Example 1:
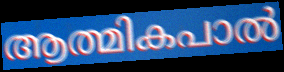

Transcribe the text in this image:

ആത്മികപാൽ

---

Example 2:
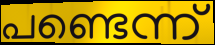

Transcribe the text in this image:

പണ്ടെന്ന്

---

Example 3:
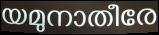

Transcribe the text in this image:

യമുനാതീരേ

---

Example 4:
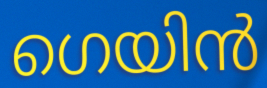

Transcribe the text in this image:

ഗെയിൻ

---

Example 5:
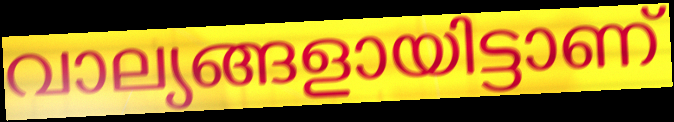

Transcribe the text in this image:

വാല്യങ്ങളായിട്ടാണ്